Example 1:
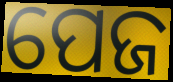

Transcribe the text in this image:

ପେଜ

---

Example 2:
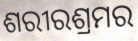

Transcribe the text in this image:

ଶରୀରଶ୍ରମର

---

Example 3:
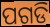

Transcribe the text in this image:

ପଗଡି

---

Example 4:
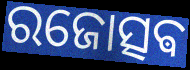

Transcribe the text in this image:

ରଜୋତ୍ସଵ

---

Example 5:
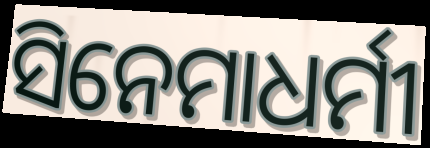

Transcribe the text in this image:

ସିନେମାଧର୍ମୀ